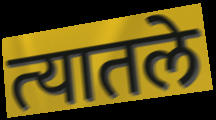
त्‍यातले